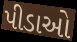
પીડાઓ